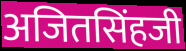
अजितसिंहजी